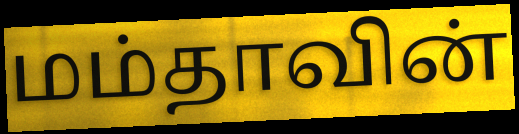
மம்தாவின்